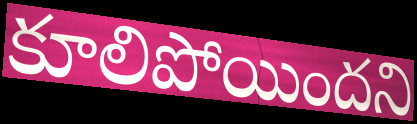
కూలిపోయిందని